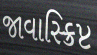
જાવાસ્ક્રિપ્ટ